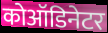
कोऑडिनेटर